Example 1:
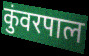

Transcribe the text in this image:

कुंवरपाल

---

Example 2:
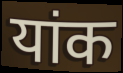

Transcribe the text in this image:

यांक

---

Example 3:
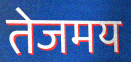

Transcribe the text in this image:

तेजमय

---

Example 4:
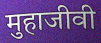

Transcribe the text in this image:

मुहाजीवी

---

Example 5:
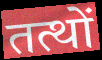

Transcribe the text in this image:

तत्थों